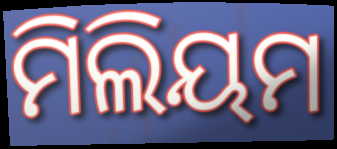
ମିଲିୟମ